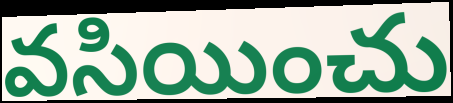
వసియించు